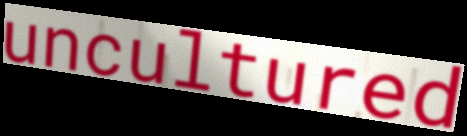
uncultured